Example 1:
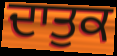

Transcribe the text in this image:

ਦਾਤੁਕ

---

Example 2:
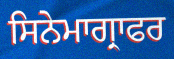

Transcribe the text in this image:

ਸਿਨੇਮਾਗ੍ਰਾਫਰ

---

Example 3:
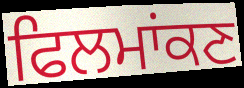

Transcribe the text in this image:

ਫਿਲਮਾਂਕਣ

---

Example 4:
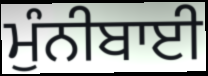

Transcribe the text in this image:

ਮੁੰਨੀਬਾਈ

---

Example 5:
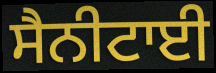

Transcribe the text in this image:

ਸੈਨੀਟਾਈ